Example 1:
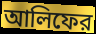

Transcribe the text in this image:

আলিফের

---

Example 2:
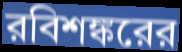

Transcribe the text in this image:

রবিশঙ্করের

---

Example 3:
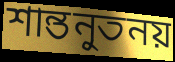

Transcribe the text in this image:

শান্তনুতনয়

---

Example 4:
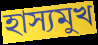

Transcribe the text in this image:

হাস্যমুখ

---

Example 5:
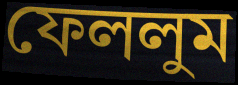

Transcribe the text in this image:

ফেললুম